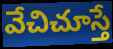
వేచిచూస్తే